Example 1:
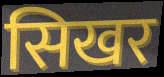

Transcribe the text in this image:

सिखर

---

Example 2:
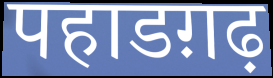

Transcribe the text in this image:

पहाडग़ढ़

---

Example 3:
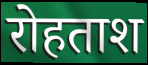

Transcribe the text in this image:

रोहताश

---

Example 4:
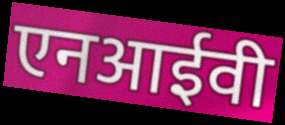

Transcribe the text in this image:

एनआईवी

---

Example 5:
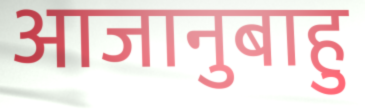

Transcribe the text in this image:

आजानुबाहु